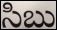
సిబు